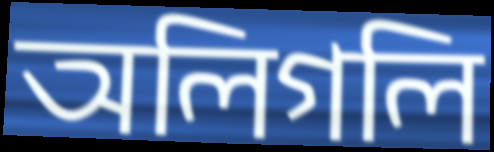
অলিগলি